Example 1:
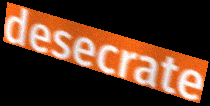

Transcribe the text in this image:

desecrate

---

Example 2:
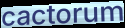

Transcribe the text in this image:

cactorum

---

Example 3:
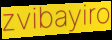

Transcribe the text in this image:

zvibayiro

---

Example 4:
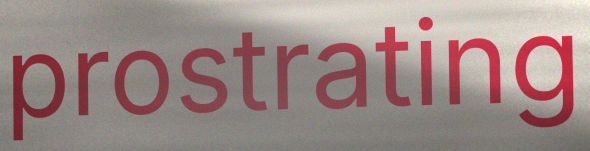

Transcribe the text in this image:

prostrating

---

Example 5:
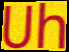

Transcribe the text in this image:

Uh